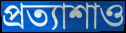
প্রত্যাশাও